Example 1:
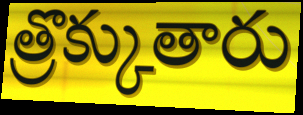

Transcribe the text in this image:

త్రొక్కుతారు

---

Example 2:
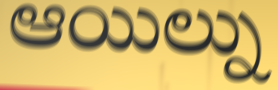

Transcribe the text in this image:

ఆయిల్ను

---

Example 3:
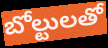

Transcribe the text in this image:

బోల్టులతో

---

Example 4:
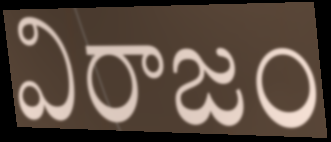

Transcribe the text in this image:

విరాజం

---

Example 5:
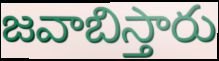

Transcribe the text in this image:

జవాబిస్తారు